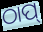
ଠାପ୍